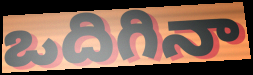
ఒదిగినా